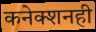
कनेक्शनही